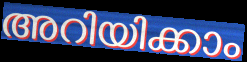
അറിയിക്കാം